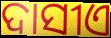
ଦାସୀଏ